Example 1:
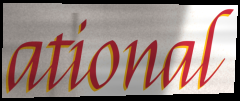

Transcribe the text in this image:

ational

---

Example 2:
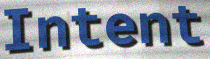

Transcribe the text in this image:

Intent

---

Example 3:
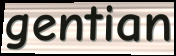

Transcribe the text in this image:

gentian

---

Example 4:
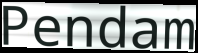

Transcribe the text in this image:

Pendam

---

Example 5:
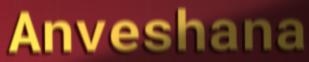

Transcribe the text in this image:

Anveshana